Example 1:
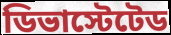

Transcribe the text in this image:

ডিভাস্টেটেড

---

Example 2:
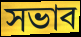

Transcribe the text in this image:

সভাব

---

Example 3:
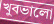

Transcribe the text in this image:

খুবভালো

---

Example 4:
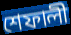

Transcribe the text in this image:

শেফালী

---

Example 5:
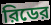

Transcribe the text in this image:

রিডের